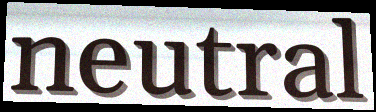
neutral